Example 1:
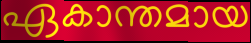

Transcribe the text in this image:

ഏകാന്തമായ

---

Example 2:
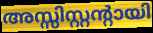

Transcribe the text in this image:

അസ്സിസ്റ്റന്റായി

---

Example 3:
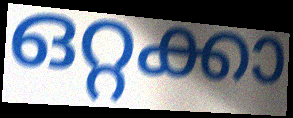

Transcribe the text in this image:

ഒറ്റക്കാ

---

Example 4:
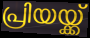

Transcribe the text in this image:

പ്രിയയ്ക്ക്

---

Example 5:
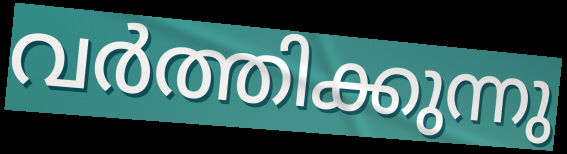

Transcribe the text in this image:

വർത്തിക്കുന്നു